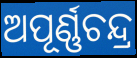
ଅପୂର୍ଣ୍ଣଚନ୍ଦ୍ର